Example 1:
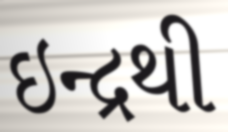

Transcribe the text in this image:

ઇન્દ્રથી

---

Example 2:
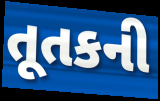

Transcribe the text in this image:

તૂતકની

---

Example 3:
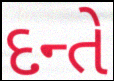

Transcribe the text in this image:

દન્તે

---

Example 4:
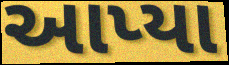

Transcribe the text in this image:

આપ્યા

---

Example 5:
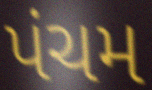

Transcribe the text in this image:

પંચમ